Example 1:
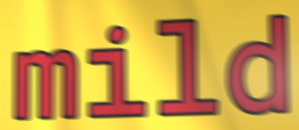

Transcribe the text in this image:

mild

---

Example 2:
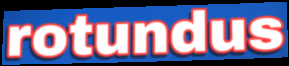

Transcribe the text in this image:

rotundus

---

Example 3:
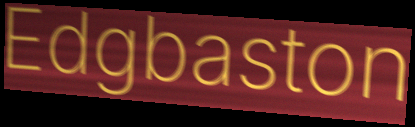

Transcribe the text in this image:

Edgbaston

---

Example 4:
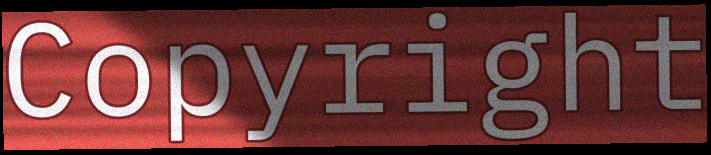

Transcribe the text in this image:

Copyright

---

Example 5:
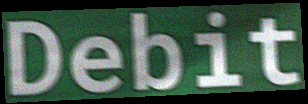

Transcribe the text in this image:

Debit